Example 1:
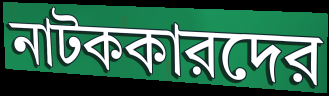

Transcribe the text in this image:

নাটককারদের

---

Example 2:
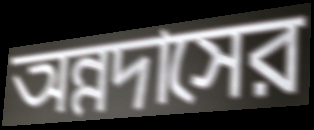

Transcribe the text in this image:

অন্নদাসের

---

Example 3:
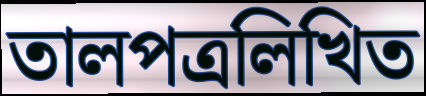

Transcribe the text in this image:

তালপত্রলিখিত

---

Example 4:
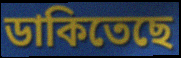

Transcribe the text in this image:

ডাকিতেছে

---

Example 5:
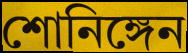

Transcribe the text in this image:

শোনিঙ্গেন